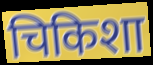
चिकिशा